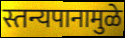
स्तन्यपानामुळे